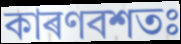
কাৰণবশতঃ